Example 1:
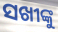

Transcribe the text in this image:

ସଖୀଙ୍କୁ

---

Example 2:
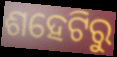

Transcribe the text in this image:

ଶହେଟିରୁ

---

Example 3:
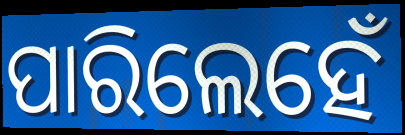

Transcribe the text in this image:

ପାରିଲେହେଁ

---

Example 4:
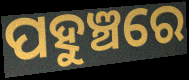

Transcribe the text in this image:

ପହୁଞ୍ଚରେ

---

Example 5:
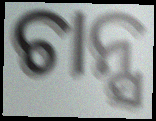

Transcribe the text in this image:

ଚାନ୍ସ